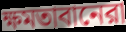
ক্ষমতাবানেরা